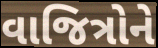
વાજિત્રોને